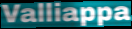
Valliappa